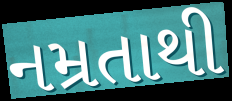
નમ્રતાથી